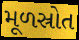
મૂળસ્રોત